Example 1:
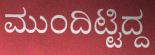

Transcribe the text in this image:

ಮುಂದಿಟ್ಟಿದ್ದ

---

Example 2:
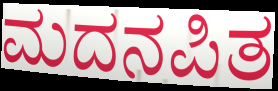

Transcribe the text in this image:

ಮದನಪಿತ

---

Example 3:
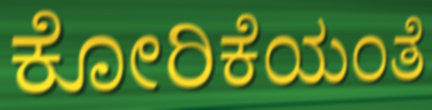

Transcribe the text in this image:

ಕೋರಿಕೆಯಂತೆ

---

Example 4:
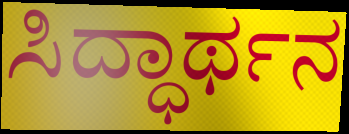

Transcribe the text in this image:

ಸಿದ್ಧಾರ್ಥನ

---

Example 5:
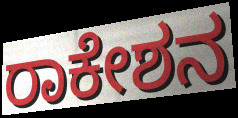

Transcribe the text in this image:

ರಾಕೇಶನ